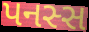
પનસ્સ